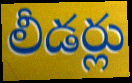
లీడర్లు